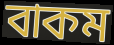
বাকম